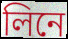
লিনে